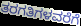
ತರಗತಿಗಳವರೆಗೆ